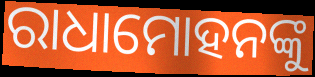
ରାଧାମୋହନଙ୍କୁ